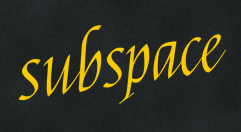
subspace